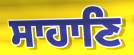
ਸਾਹਾਣਿ